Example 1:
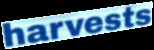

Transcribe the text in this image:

harvests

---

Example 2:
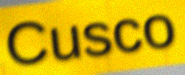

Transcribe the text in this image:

Cusco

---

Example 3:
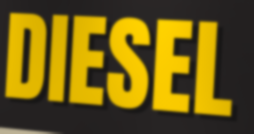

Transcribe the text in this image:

DIESEL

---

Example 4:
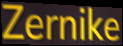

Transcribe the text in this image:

Zernike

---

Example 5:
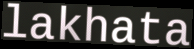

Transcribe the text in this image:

lakhata